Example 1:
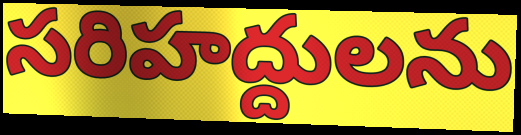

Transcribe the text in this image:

సరిహద్దులను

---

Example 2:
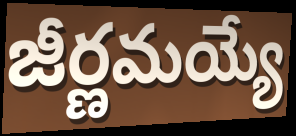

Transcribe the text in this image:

జీర్ణమయ్యే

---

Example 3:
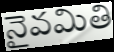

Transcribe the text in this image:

నైవమితి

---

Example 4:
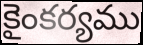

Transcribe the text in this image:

కైంకర్యము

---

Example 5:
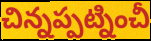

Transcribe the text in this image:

చిన్నప్పట్నించీ